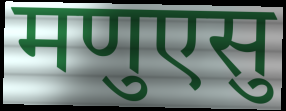
मणुएसु